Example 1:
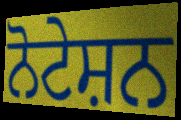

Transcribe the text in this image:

ਨੋਟੇਸ਼ਨ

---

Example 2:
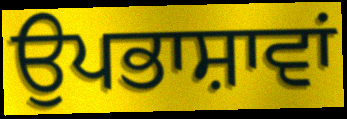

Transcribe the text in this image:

ਉਪਭਾਸ਼ਾਵਾਂ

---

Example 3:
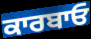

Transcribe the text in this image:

ਕਾਰਬਾਓ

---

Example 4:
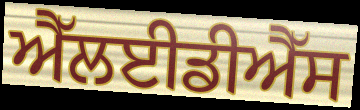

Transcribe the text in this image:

ਐੱਲਈਡੀਐੱਸ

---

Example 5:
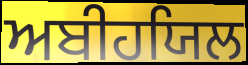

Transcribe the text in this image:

ਅਬੀਹਯਿਲ